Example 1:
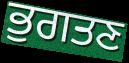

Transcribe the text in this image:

ਭੁਗਤਣ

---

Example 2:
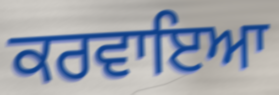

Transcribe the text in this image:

ਕਰਵਾਇਆ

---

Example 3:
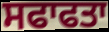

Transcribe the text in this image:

ਸਫਾਫਤਾ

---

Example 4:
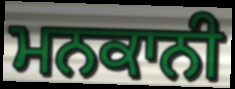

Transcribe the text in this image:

ਮਨਕਾਨੀ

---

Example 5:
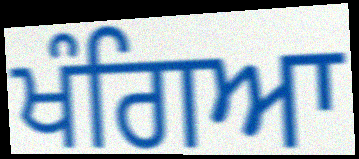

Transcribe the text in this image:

ਖੰਗਿਆ